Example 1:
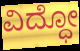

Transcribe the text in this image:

ವಿದ್ಧೋ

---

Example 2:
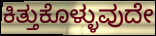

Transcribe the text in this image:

ಕಿತ್ತುಕೊಳ್ಳುವುದೇ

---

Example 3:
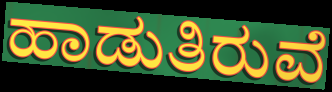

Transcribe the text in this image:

ಹಾಡುತಿರುವೆ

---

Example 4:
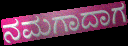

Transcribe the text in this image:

ನಮಗಾದಾಗ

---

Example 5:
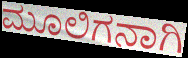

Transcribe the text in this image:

ಮೂಲಿಗನಾಗಿ